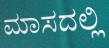
ಮಾಸದಲ್ಲಿ